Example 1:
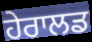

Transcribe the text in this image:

ਹੇਰਾਲਡ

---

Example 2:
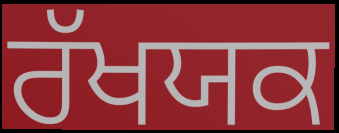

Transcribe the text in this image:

ਰੱਖਯਕ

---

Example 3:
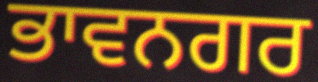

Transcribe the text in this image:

ਭਾਵਨਗਰ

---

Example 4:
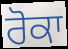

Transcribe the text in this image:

ਰੋਕਾ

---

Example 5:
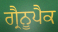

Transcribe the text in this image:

ਗ੍ਰੈਨੂਪੈਕ